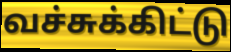
வச்சுக்கிட்டு